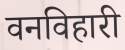
वनविहारी